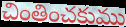
చింతించకుము